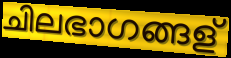
ചിലഭാഗങ്ങള്